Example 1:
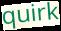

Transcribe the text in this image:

quirk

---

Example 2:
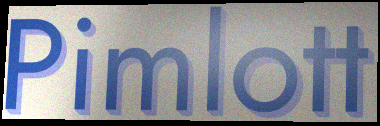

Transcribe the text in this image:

Pimlott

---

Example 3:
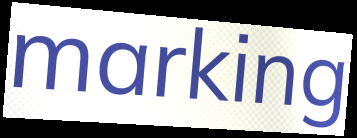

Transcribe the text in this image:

marking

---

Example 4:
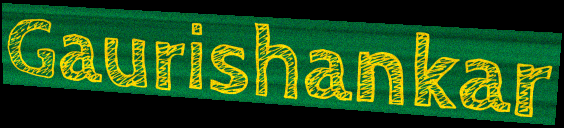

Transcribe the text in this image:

Gaurishankar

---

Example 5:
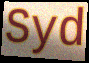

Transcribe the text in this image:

Syd